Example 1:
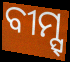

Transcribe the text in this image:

ବୀମ୍ସ୍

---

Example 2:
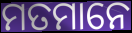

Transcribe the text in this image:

ମତମାନେ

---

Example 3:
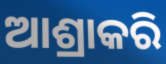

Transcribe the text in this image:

ଆଶ୍ରାକରି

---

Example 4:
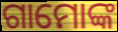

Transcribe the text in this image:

ଗାମୋଙ୍କ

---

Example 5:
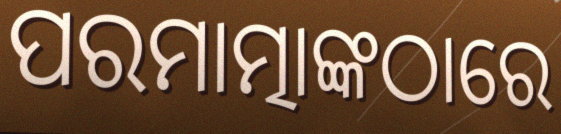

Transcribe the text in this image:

ପରମାତ୍ମାଙ୍କଠାରେ